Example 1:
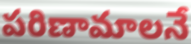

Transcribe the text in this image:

పరిణామాలనే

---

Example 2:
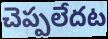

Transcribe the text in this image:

చెప్పలేదట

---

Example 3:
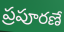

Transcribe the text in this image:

ప్రపూరణే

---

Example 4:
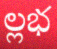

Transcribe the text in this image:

ల్లభ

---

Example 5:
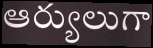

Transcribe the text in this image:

ఆర్యులుగా